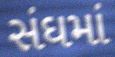
સંઘમાં